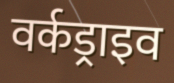
वर्कड्राइव